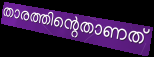
താരത്തിന്റെതാണത്